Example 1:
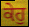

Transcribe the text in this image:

ਕੇਹੁ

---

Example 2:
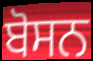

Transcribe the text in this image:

ਬੋਸਨ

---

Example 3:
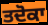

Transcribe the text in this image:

ਤਦੋਕਾ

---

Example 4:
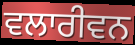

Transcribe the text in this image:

ਵਲਾਰੀਵਨ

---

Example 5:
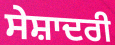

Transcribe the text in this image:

ਸੇਸ਼ਾਦਰੀ